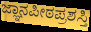
ಜ್ಞಾನಪೀಠಪ್ರಶಸ್ತಿ